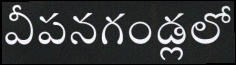
వీపనగండ్లలో